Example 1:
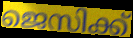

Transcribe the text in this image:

ജെസിക്ക്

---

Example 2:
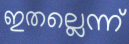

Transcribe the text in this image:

ഇതല്ലെന്ന്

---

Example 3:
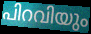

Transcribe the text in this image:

പിറവിയും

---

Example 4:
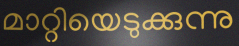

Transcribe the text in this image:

മാറ്റിയെടുക്കുന്നു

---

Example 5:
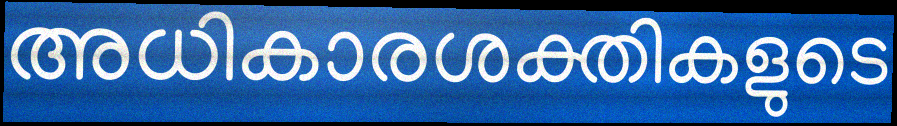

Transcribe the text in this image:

അധികാരശക്തികളുടെ